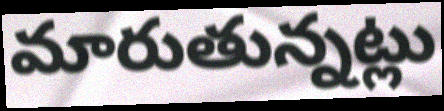
మారుతున్నట్లు